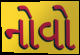
નોવો